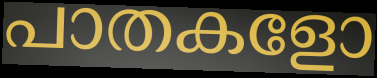
പാതകളോ